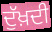
ਦੁੱਖ਼ਦੀ